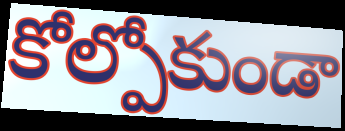
కోల్పోకుండా